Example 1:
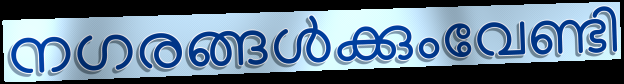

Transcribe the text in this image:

നഗരങ്ങൾക്കുംവേണ്ടി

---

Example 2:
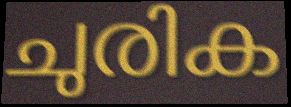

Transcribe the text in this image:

ചുരിക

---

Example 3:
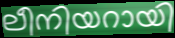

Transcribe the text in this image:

ലീനിയറായി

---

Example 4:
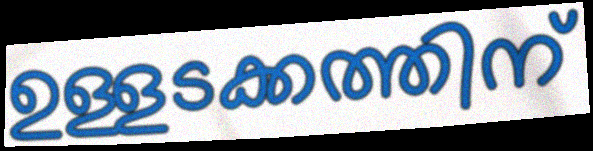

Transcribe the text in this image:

ഉള്ളടക്കത്തിന്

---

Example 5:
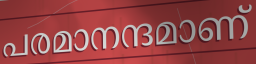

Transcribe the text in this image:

പരമാനന്ദമാണ്